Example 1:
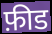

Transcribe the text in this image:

फ़ीड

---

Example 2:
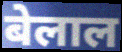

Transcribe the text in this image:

बेलाल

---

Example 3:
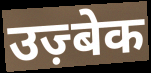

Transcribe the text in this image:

उज़्बेक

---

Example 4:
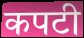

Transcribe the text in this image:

कपटी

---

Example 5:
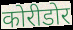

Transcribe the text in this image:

कोरीडोर